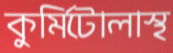
কুর্মিটোলাস্থ